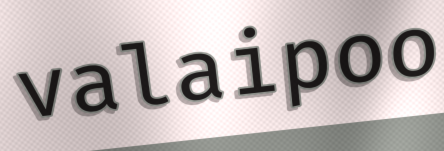
valaipoo